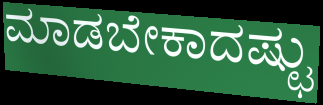
ಮಾಡಬೇಕಾದಷ್ಟು